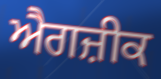
ਐਗਜ਼ੀਕ